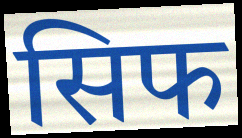
सिफ